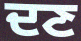
ਦਣ